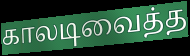
காலடிவைத்த